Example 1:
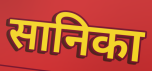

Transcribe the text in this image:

सानिका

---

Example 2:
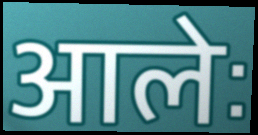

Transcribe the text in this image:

आलेः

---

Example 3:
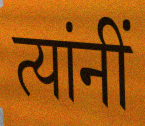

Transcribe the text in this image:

त्यांनीं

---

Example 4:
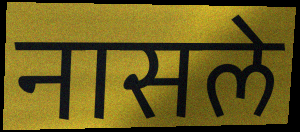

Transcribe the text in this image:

नासले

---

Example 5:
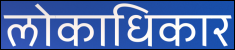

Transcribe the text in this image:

लोकाधिकार